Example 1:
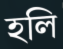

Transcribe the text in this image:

হলি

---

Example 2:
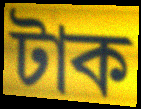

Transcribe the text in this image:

টাক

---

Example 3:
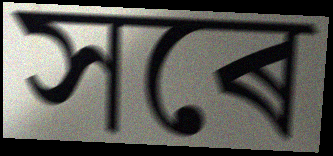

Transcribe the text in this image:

সৰে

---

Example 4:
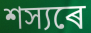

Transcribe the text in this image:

শস্যৰে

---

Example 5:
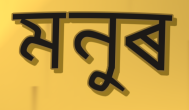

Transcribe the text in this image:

মনুৰ